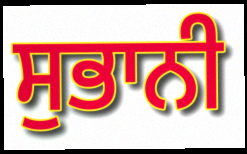
ਸੁਭਾਨੀ